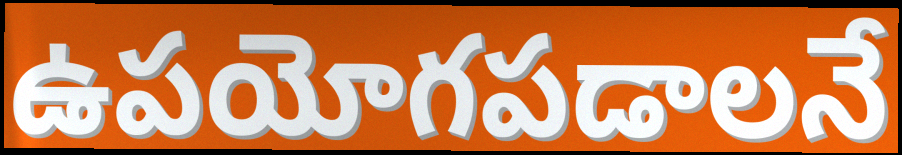
ఉపయోగపడాలనే